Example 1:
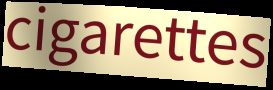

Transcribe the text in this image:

cigarettes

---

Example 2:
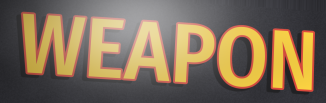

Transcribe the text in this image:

WEAPON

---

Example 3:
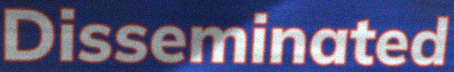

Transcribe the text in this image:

Disseminated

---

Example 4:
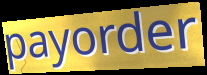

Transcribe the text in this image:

payorder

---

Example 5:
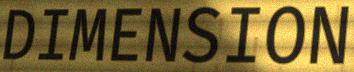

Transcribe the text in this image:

DIMENSION